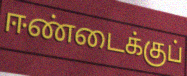
ஈண்டைக்குப்